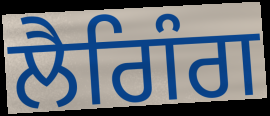
ਲੈਗਿੰਗ